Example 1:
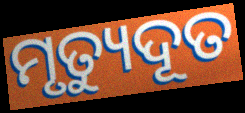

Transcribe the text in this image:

ମୃତ୍ୟୁଦୂତ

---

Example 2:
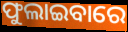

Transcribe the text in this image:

ଫୁଲାଇବାରେ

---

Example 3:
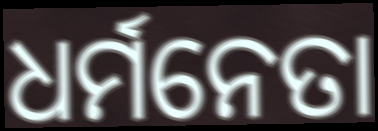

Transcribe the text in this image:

ଧର୍ମନେତା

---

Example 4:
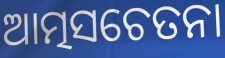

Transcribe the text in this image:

ଆତ୍ମସଚେତନା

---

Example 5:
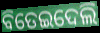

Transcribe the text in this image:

ବିତେଇଦେଲି